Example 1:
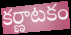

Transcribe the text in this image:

కర్ణాటకం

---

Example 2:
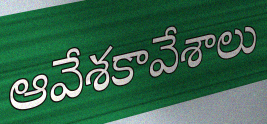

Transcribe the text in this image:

ఆవేశకావేశాలు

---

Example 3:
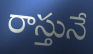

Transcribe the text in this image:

రాస్తునే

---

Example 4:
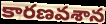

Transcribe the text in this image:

కారణవశాన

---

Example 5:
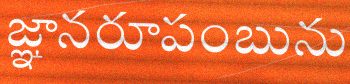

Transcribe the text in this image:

జ్ఞానరూపంబును